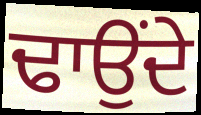
ਢਾਉਂਦੇ